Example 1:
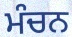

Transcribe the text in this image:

ਮੰਚਨ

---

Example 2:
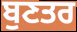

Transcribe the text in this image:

ਬੁਣਤਰ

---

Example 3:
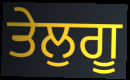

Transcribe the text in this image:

ਤੇਲੁਗੂ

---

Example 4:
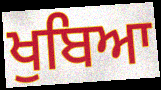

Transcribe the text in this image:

ਖੁਬਿਆ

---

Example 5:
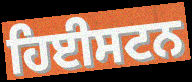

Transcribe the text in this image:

ਹਿਈਸਟਨ